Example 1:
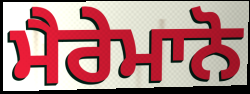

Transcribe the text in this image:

ਮੈਰੇਮਾਨੋ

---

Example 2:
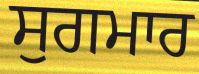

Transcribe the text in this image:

ਸੁਗਮਾਰ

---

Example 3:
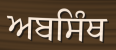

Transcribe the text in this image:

ਅਬਸਿੰਥ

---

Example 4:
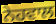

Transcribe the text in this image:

ਨੇਹਵਾਲ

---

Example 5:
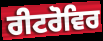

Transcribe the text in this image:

ਰੀਟਰੋਵਿਰ